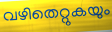
വഴിതെറ്റുകയും